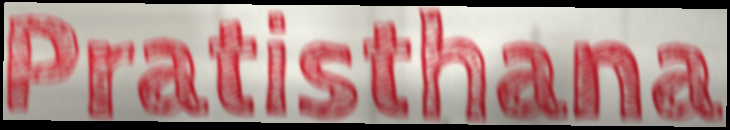
Pratisthana